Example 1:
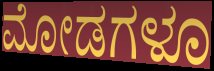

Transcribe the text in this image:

ಮೋಡಗಳೂ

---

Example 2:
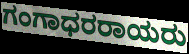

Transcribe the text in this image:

ಗಂಗಾಧರರಾಯರು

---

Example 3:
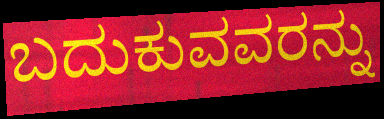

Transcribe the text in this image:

ಬದುಕುವವರನ್ನು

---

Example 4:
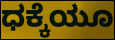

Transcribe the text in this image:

ಧಕ್ಕೆಯೂ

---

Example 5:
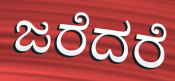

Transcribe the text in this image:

ಜರೆದರೆ